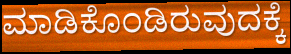
ಮಾಡಿಕೊಂಡಿರುವುದಕ್ಕೆ